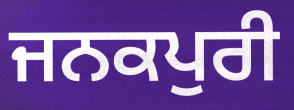
ਜਨਕਪੁਰੀ